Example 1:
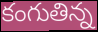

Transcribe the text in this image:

కంగుతిన్న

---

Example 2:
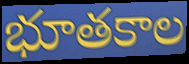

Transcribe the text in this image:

భూతకాల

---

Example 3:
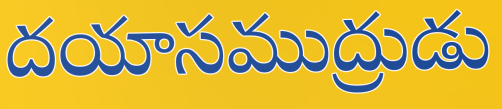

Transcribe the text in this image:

దయాసముద్రుడు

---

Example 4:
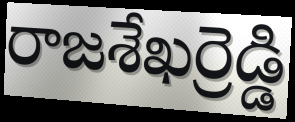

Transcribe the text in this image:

రాజశేఖర్రెడ్డి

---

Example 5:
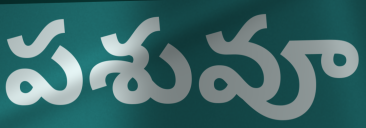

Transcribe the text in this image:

పశువూ